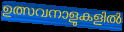
ഉത്സവനാളുകളിൽ